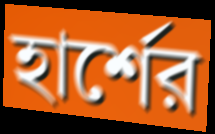
হার্শের